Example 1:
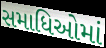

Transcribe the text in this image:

સમાધિઓમાં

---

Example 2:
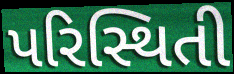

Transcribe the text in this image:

પરિસ્થિતી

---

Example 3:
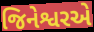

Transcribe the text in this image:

જિનેશ્વરએ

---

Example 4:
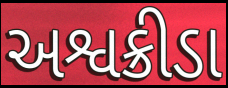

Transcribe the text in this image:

અશ્વક્રીડા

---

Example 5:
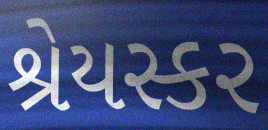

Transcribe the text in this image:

શ્રેયસ્કર